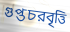
গুপ্তচরবৃত্তি